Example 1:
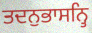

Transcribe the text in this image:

ਤਦਨੁਭਾਸਨ੍ਤਿ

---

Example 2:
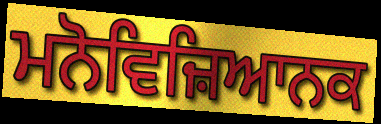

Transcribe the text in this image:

ਮਨੋਵਿਜ਼ਿਆਨਕ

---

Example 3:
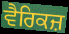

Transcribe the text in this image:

ਵੈਰਿਕਜ਼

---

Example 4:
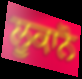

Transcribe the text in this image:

ਲੂਕਾਨੋ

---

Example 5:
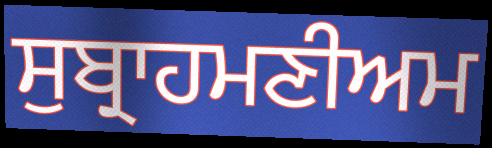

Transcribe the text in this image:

ਸੁਬ੍ਰਾਹਮਣੀਅਮ